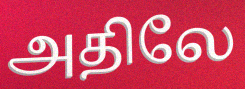
அதிலே